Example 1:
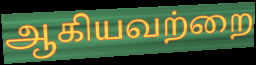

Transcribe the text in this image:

ஆகியவற்றை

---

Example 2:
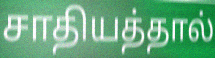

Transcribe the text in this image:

சாதியத்தால்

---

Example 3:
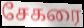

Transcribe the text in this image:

சேகரை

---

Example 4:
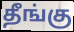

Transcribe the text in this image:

தீங்கு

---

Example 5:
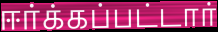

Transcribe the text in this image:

ஈர்க்கப்பட்டார்